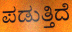
ಪಡುತ್ತಿದೆ